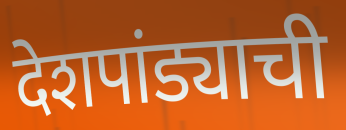
देशपांड्याची